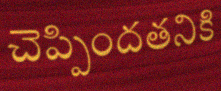
చెప్పిందతనికి